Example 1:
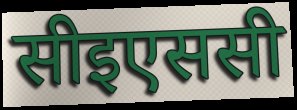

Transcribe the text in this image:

सीइएससी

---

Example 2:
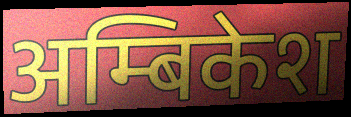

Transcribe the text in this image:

अम्बिकेश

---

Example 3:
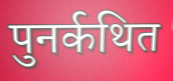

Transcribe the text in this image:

पुनर्कथित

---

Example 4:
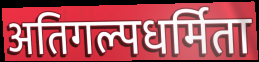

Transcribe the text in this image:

अतिगल्पधर्मिता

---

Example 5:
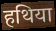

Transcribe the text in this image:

हथिया